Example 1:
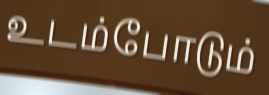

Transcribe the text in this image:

உடம்போடும்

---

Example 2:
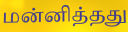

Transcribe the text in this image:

மன்னித்தது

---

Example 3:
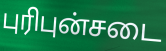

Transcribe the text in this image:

புரிபுன்சடை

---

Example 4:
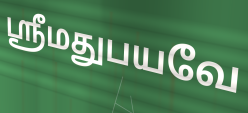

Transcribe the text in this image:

ஸ்ரீமதுபயவே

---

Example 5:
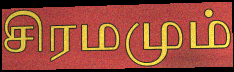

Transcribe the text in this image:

சிரமமும்